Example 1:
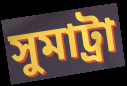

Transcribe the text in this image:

সুমাট্ৰা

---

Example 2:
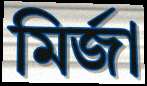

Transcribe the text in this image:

মিৰ্জা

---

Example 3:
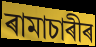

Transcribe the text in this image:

ৰামাচাৰীৰ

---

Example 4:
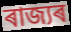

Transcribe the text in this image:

ৰাজ্যৰ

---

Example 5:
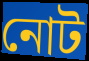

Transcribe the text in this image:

নোট